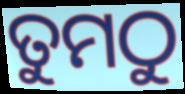
ତୁମଠୁ